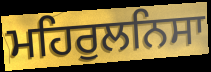
ਮਹਿਰੁਲਨਿਸਾ